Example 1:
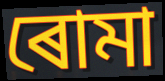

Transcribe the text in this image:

ৰোমা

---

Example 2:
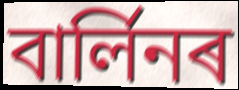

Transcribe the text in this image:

বাৰ্লিনৰ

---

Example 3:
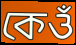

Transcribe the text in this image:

কেওঁ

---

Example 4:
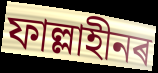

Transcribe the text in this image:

ফাল্লাহীনৰ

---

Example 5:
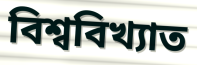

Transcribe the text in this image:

বিশ্ববিখ্যাত